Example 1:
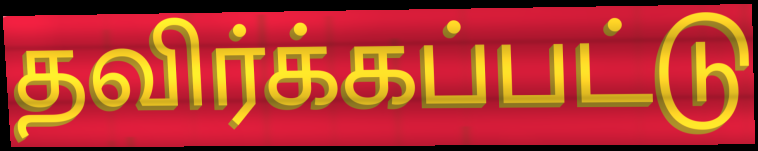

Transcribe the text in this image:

தவிர்க்கப்பட்டு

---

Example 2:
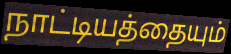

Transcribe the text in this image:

நாட்டியத்தையும்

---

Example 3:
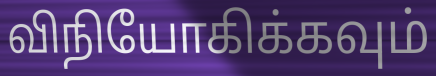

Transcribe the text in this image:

விநியோகிக்கவும்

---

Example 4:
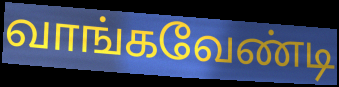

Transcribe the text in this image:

வாங்கவேண்டி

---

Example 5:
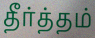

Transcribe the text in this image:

தீர்த்தம்